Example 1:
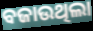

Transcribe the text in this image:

ବଜାଉଥିଲା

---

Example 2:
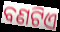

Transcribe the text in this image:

ବଣଟିଏ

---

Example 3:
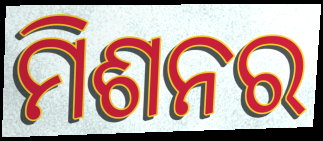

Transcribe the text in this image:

ମିଶନର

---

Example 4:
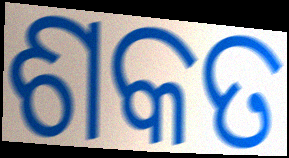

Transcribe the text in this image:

ଶକତ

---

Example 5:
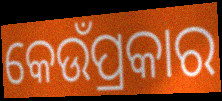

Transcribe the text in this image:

କେଉଁପ୍ରକାର